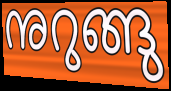
നുറുങ്ങു